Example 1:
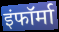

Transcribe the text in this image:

इंफॉर्मा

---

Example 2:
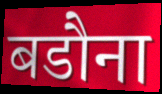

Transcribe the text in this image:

बडौना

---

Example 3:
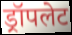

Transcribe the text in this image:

ड्रॉपलेट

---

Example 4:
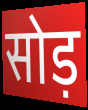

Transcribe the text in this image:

सोड़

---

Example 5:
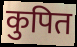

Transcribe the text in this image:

कुपित